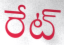
రేట్